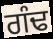
ਗੰਢ